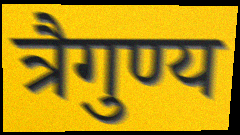
त्रैगुण्य